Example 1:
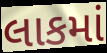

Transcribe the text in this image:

લાકમાં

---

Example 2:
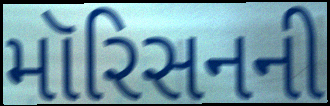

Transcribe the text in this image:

મૉરિસનની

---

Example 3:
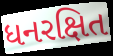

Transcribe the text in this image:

ધનરક્ષિત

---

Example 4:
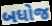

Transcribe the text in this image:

બધોજ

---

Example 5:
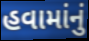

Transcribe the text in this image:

હવામાંનું